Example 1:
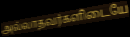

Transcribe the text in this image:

அல்லாதவர்களிடையே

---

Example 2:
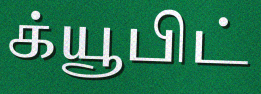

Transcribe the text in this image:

க்யூபிட்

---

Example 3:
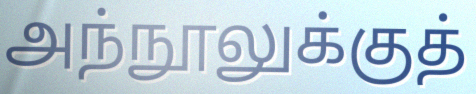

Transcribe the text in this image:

அந்நூலுக்குத்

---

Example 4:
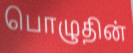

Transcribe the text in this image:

பொழுதின்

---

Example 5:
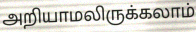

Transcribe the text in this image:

அறியாமலிருக்கலாம்